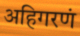
अहिगरणं